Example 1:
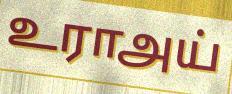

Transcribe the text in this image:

உராஅய்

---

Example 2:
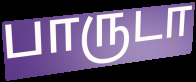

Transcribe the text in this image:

பாருடா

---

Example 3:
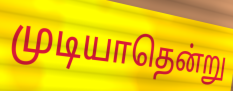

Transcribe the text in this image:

முடியாதென்று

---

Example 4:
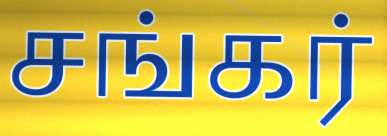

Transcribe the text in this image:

சங்கர்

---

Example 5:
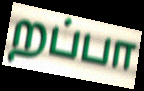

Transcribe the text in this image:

றப்பா